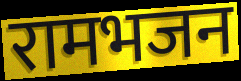
रामभजन